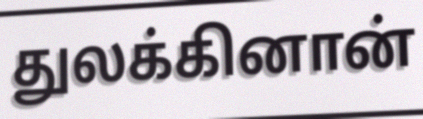
துலக்கினான்